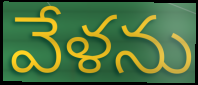
వేళను